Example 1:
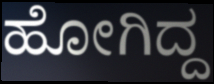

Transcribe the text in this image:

ಹೋಗಿದ್ದ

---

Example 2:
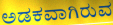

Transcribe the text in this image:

ಅಡಕವಾಗಿರುವ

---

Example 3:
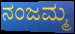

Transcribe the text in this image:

ನಂಜಮ್ಮ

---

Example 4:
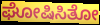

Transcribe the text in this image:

ಘೋಷಿಸಿತೋ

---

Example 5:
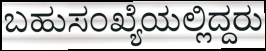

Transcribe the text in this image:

ಬಹುಸಂಖ್ಯೆಯಲ್ಲಿದ್ದರು